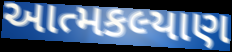
આત્મકલ્યાણ